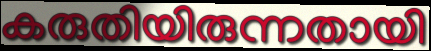
കരുതിയിരുന്നതായി